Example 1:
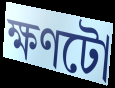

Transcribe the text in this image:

ক্ষণটো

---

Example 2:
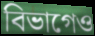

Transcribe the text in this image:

বিভাগেও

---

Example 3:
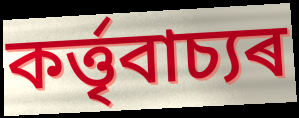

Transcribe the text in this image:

কৰ্ত্তৃবাচ্যৰ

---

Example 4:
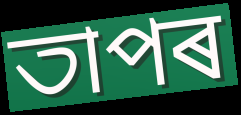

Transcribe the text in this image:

তাপৰ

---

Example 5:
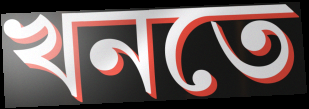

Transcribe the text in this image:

খনতে